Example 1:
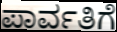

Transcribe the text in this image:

ಪಾರ್ವತಿಗೆ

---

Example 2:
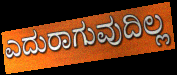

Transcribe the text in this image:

ಎದುರಾಗುವುದಿಲ್ಲ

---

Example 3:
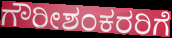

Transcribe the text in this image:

ಗೌರೀಶಂಕರರಿಗೆ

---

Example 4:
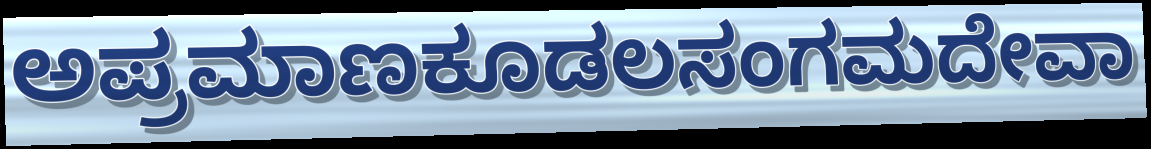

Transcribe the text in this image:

ಅಪ್ರಮಾಣಕೂಡಲಸಂಗಮದೇವಾ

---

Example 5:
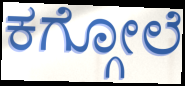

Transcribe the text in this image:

ಕಗ್ಗೋಲೆ